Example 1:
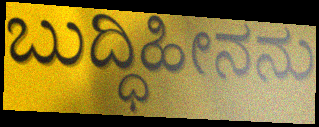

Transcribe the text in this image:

ಬುದ್ಧಿಹೀನನು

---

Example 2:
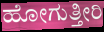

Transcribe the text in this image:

ಹೋಗುತ್ತೀರಿ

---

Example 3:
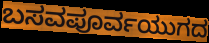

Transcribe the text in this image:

ಬಸವಪೂರ್ವಯುಗದ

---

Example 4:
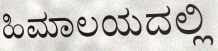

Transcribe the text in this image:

ಹಿಮಾಲಯದಲ್ಲಿ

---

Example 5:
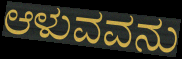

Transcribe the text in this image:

ಆಳುವವನು